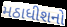
મઠાધીશનો